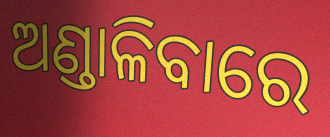
ଅଣ୍ଡାଳିବାରେ